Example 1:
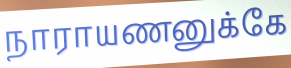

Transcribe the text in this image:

நாராயணனுக்கே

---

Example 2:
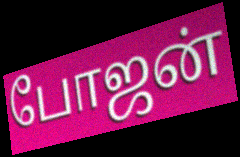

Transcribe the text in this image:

போஜன்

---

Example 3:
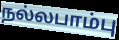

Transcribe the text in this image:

நல்லபாம்பு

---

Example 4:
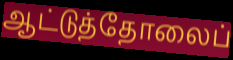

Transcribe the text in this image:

ஆட்டுத்தோலைப்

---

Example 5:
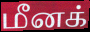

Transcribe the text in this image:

மீனக்